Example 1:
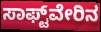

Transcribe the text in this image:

ಸಾಫ್ಟ್‌ವೇರಿನ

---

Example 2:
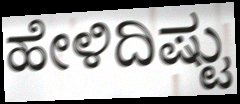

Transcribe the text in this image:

ಹೇಳಿದಿಷ್ಟು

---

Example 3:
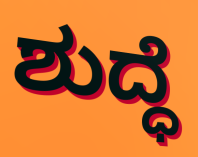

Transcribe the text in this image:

ಶುದ್ಧೆ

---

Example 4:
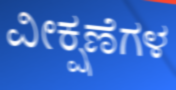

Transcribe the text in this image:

ವೀಕ್ಷಣೆಗಳ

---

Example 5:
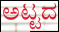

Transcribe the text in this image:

ಅಟ್ಟದ